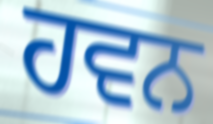
ਹਵਨ